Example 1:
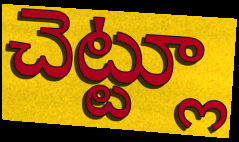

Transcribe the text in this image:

చెట్ట్లూ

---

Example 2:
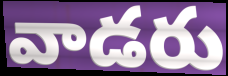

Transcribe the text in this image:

వాడరు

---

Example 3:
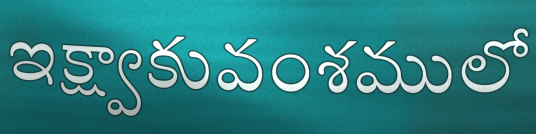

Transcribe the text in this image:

ఇక్ష్వాకువంశములో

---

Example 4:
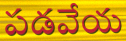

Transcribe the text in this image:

పడవేయ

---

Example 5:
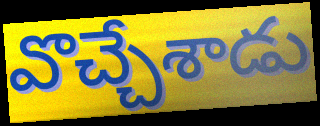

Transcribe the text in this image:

వొచ్చేశాడు